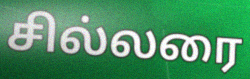
சில்லரை